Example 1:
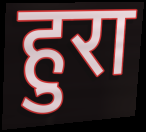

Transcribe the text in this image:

हुरा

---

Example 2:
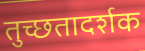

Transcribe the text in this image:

तुच्छतादर्शक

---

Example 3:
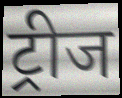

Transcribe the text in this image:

ट्रीज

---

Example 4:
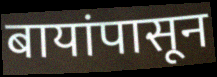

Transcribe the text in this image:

बायांपासून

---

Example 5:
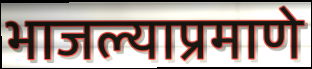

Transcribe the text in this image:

भाजल्याप्रमाणे